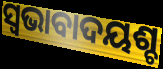
ସ୍ଵଭାବାଦୟଶ୍ଚ